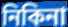
নিকিনা